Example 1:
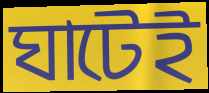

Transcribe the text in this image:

ঘাটেই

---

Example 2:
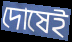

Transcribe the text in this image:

দোষেই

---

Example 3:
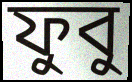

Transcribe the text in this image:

ফুবু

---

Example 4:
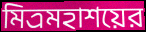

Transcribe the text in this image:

মিত্রমহাশয়ের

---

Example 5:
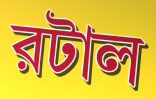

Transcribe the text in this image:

রটাল